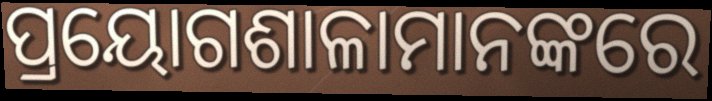
ପ୍ରୟୋଗଶାଳାମାନଙ୍କରେ